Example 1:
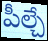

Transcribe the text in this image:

పీల్చే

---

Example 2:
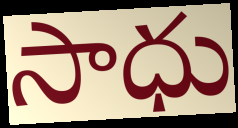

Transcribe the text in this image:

సాధు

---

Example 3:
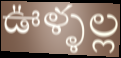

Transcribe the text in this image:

ఊళ్ళల్ల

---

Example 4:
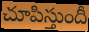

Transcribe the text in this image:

చూపిస్తుందీ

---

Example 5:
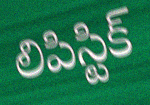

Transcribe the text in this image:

లిపిస్టిక్